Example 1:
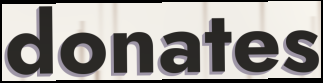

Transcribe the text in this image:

donates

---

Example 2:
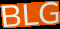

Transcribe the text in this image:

BLG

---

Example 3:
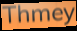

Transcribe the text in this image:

Thmey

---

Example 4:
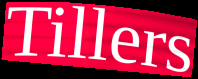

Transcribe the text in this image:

Tillers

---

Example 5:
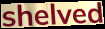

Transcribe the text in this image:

shelved